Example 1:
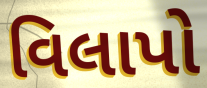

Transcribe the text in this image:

વિલાપો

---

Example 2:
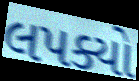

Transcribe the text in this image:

લપક્યો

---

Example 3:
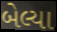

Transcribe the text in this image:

બેલ્યા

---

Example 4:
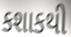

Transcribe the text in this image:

કશાકથી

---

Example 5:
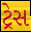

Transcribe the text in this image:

ટ્રેસ